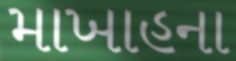
માખાહના